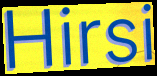
Hirsi